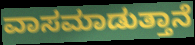
ವಾಸಮಾಡುತ್ತಾನೆ